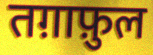
तग़ाफ़ुल